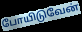
போயிடுவேன்